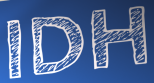
IDH